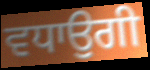
ਵਧਾਉਗੀ